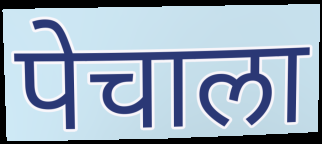
पेचाला